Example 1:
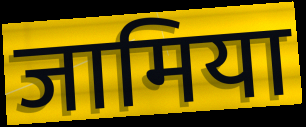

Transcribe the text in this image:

जामिया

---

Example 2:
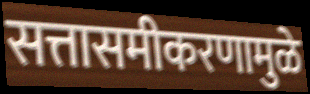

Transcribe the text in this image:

सत्तासमीकरणामुळे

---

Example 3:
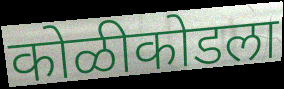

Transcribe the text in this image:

कोळीकोडला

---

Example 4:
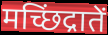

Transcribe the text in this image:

मच्छिंद्रातें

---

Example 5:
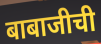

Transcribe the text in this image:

बाबाजीची